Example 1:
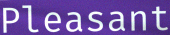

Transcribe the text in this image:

Pleasant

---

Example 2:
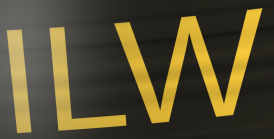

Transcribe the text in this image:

ILW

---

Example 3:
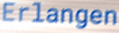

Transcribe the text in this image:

Erlangen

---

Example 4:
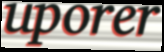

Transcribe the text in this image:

uporer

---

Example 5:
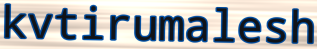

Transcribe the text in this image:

kvtirumalesh